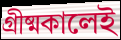
গ্রীষ্মকালেই